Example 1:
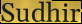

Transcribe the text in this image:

Sudhir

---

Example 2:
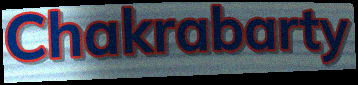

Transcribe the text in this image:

Chakrabarty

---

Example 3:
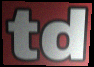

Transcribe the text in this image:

td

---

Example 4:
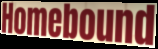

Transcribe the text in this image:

Homebound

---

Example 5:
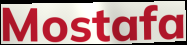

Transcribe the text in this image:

Mostafa